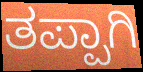
ತಪ್ಪಾಗಿ